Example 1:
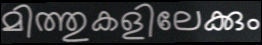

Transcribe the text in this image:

മിത്തുകളിലേക്കും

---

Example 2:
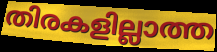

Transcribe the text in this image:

തിരകളില്ലാത്ത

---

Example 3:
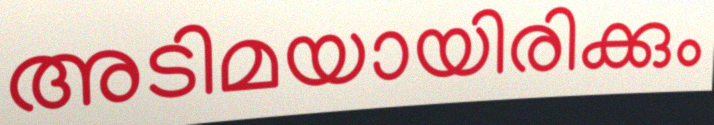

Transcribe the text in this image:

അടിമയായിരിക്കും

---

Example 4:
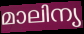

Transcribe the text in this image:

മാലിന്യ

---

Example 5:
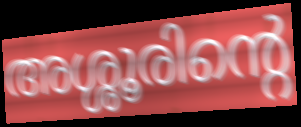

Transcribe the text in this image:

അശ്ശൂരിന്റെ